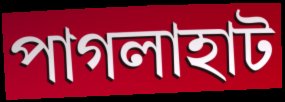
পাগলাহাট